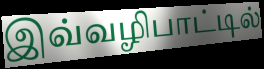
இவ்வழிபாட்டில்